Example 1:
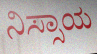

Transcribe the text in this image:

ನಿಸ್ಸಾಯ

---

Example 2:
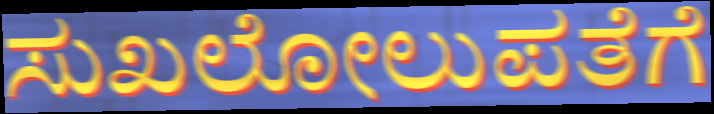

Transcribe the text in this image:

ಸುಖಲೋಲುಪತೆಗೆ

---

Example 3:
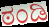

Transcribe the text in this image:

ಠಂಡಿ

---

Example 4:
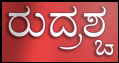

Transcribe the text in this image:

ರುದ್ರಶ್ಚ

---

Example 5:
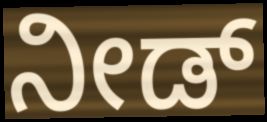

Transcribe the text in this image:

ನೀಡ್